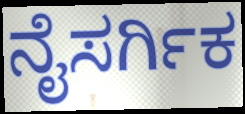
ನೈಸರ್ಗಿಕ